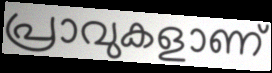
പ്രാവുകളാണ്